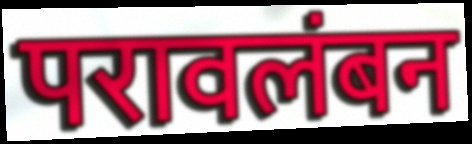
परावलंबन